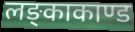
लङ्काकाण्ड